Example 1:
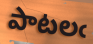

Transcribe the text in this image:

పాటలఁ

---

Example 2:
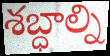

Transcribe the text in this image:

శబ్ధాల్ని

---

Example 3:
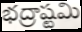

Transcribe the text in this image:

భద్రాష్టమి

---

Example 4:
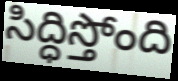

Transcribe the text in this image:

సిద్ధిస్తోంది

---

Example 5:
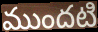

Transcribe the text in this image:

ముందటి